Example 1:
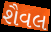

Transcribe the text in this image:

શૈવલ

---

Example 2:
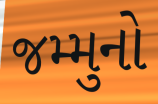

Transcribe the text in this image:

જમ્મુનો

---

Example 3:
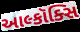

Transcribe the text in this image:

આલ્કૉક્સિ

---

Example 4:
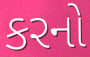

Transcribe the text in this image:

કરનો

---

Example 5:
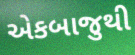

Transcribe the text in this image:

એકબાજુથી